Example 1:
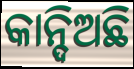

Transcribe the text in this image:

କାନ୍ଦିଅଛି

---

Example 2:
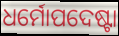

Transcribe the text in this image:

ଧର୍ମୋପଦେଷ୍ଟା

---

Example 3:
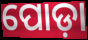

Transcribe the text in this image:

ପୋଡ଼ା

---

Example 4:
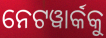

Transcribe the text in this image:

ନେଟୱାର୍କକୁ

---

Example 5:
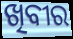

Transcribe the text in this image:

ଖିବୀର